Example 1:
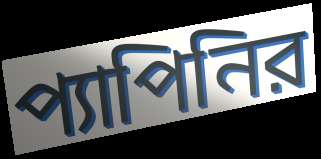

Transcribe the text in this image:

প্যাপিনির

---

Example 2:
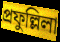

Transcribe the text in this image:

প্রফুল্লিলা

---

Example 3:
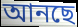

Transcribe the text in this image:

আনছে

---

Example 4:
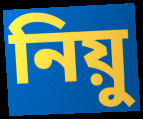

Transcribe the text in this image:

নিয়ু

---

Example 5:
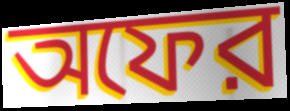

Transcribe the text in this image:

অফের